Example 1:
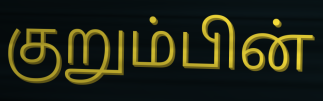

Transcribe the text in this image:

குறும்பின்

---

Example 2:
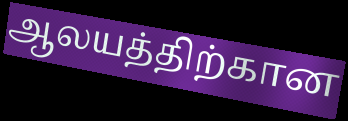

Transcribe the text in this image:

ஆலயத்திற்கான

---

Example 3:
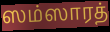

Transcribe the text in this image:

ஸம்ஸாரத்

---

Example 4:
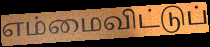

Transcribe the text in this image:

எம்மைவிட்டுப்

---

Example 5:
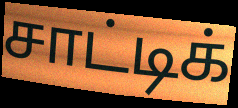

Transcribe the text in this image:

சாட்டிக்